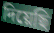
দিয়েছি